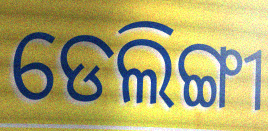
ଡେଲିଙ୍ଗୀ